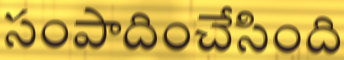
సంపాదించేసింది